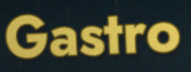
Gastro